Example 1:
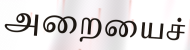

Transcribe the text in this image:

அறையைச்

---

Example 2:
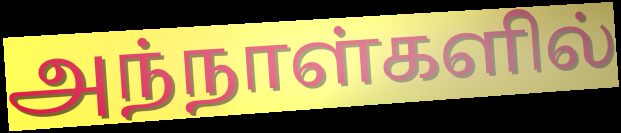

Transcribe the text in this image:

அந்நாள்களில்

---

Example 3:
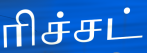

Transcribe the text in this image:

ரிச்சட்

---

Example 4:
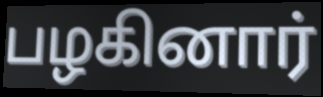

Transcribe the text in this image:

பழகினார்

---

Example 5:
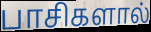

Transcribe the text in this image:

பாசிகளால்